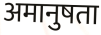
अमानुषता